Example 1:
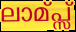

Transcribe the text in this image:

ലാമ്പ്സ്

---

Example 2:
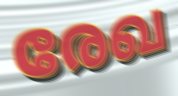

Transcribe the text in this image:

രേഖ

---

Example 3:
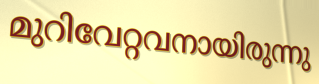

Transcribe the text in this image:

മുറിവേറ്റവനായിരുന്നു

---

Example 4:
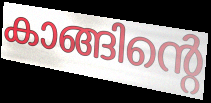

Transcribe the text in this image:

കാങ്ങിന്റെ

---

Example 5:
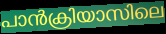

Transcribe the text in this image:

പാൻക്രിയാസിലെ